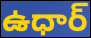
ఉధార్